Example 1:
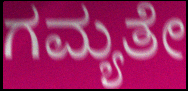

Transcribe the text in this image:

ಗಮ್ಯತೇ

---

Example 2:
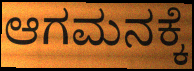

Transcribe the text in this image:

ಆಗಮನಕ್ಕೆ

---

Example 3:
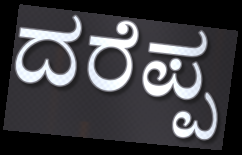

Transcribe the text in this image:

ದರೆಪ್ಪ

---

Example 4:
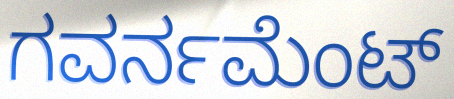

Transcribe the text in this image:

ಗವರ್ನಮೆಂಟ್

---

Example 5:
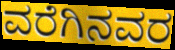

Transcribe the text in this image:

ವರೆಗಿನವರ